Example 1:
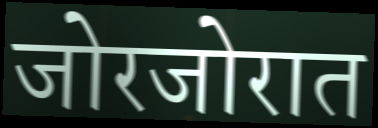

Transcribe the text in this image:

जोरजोरात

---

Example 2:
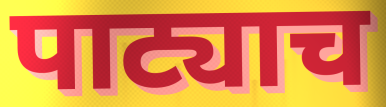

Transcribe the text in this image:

पाट्याच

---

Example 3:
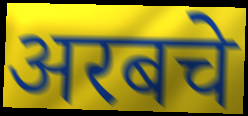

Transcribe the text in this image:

अरबचे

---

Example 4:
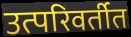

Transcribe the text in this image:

उत्परिवर्तीत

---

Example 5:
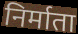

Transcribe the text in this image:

निर्माता